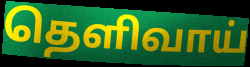
தெளிவாய்